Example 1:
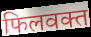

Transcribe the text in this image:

फिलवक्‍त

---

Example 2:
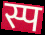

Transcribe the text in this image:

स्प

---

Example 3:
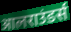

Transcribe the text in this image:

आलराउंडर्स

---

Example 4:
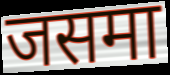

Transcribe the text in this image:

जसमा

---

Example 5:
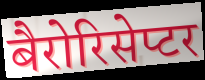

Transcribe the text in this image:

बैरोरिसेप्टर